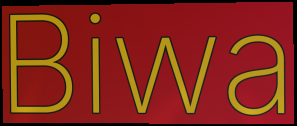
Biwa